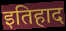
इतिहाद